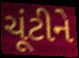
ચૂંટીને